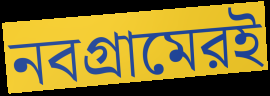
নবগ্রামেরই